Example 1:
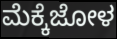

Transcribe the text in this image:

ಮೆಕ್ಕೆಜೋಳ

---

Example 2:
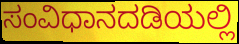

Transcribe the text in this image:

ಸಂವಿಧಾನದಡಿಯಲ್ಲಿ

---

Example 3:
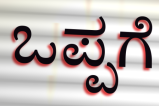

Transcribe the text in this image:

ಒಪ್ಪಗೆ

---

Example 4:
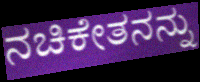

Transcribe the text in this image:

ನಚಿಕೇತನನ್ನು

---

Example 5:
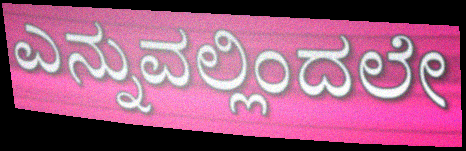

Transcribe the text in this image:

ಎನ್ನುವಲ್ಲಿಂದಲೇ